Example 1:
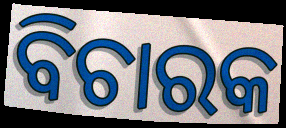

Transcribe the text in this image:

ବିଚାରକ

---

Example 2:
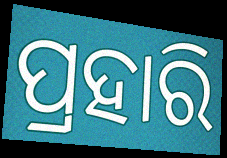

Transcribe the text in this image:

ପ୍ରହାରି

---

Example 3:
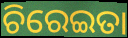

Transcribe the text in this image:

ଚିରେଇତା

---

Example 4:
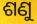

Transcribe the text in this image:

ଶଣୁ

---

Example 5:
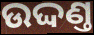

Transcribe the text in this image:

ଉଦ୍ଦଣ୍ତ